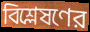
বিশ্লেষণের